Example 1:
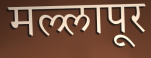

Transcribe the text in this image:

मल्लापूर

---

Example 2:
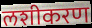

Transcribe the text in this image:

लशीकरण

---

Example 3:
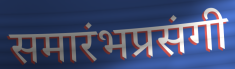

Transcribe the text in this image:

समारंभप्रसंगी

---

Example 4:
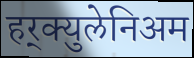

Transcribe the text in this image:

हर्क्युलेनिअम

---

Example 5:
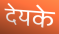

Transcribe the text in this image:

देयके